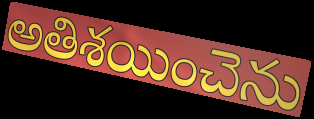
అతిశయించెను